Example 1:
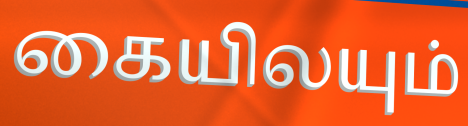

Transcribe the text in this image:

கையிலயும்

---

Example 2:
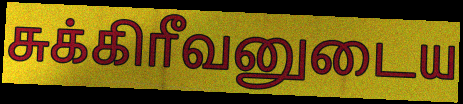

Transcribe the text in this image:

சுக்கிரீவனுடைய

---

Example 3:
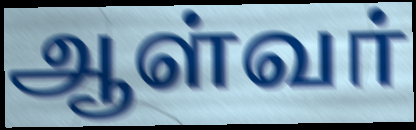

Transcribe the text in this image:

ஆள்வர்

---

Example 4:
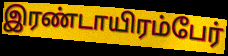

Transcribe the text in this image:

இரண்டாயிரம்பேர்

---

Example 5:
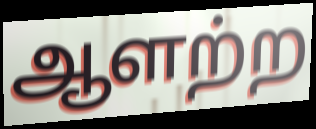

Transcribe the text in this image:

ஆளற்ற